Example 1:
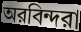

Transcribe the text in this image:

অরবিন্দরা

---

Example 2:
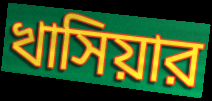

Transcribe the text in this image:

খাসিয়ার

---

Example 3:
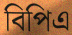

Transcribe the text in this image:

বিপিএ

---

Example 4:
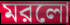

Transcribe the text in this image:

মরলো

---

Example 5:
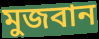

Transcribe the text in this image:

মুজবান